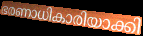
ഭരണാധികാരിയാക്കി